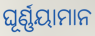
ଘୂର୍ଣ୍ଣୟାମାନ